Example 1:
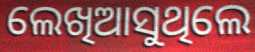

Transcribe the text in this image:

ଲେଖିଆସୁଥିଲେ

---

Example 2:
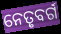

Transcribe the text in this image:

ନେତୃବର୍ଗ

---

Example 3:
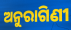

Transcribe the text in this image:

ଅନୁରାଗିଣୀ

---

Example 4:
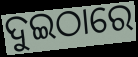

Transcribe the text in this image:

ଦୁଇଠାରେ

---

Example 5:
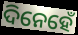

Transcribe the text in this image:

ଦିନେହେଁ